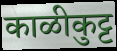
काळीकुट्ट